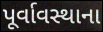
પૂર્વાવસ્થાના